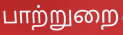
பாற்றுறை